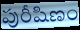
పురీషిణం